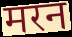
मरन